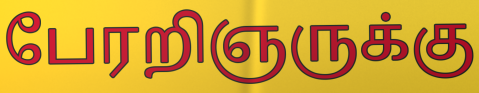
பேரறிஞருக்கு